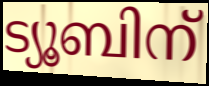
ട്യൂബിന്